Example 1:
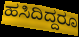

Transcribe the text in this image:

ಹಸಿದಿದ್ದರೂ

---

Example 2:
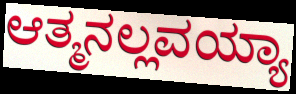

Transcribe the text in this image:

ಆತ್ಮನಲ್ಲವಯ್ಯಾ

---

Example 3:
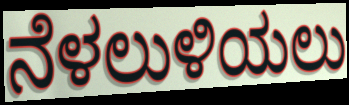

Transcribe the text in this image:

ನೆಳಲುಳಿಯಲು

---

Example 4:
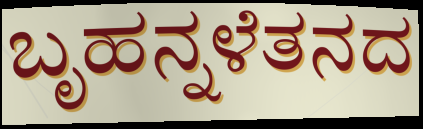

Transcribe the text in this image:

ಬೃಹನ್ನಳೆತನದ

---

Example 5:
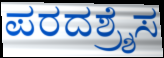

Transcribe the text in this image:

ಪರದಶ್ರ್ಶೆಸ